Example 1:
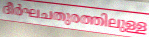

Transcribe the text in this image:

ദീർഘചതുരത്തിലുള്ള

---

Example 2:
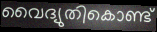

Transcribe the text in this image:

വൈദ്യുതികൊണ്ട്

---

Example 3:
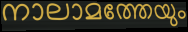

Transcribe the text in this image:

നാലാമത്തേയും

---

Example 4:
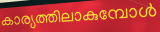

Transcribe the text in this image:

കാര്യത്തിലാകുമ്പോൾ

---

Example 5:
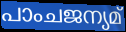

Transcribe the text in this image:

പാംചജന്യമ്